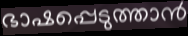
ഭാഷപ്പെടുത്താൻ